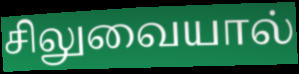
சிலுவையால்